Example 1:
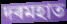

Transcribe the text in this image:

দৰমহাত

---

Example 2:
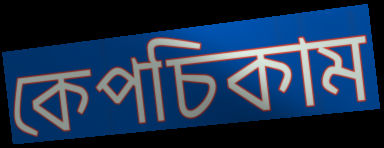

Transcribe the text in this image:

কেপচিকাম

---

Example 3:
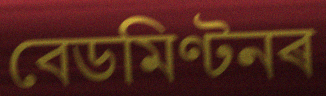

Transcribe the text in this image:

বেডমিণ্টনৰ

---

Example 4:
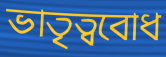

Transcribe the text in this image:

ভাতৃত্ববোধ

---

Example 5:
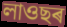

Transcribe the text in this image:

লাওছৰ